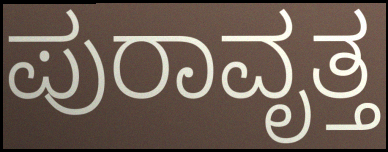
ಪುರಾವೃತ್ತ